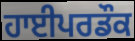
ਹਾਈਪਰਡੌਕ